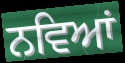
ਨਵਿਆਂ